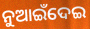
ନୁଆଇଁଦେଇ